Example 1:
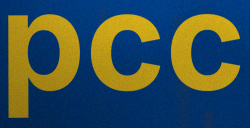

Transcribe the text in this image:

pcc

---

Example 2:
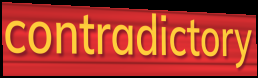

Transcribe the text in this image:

contradictory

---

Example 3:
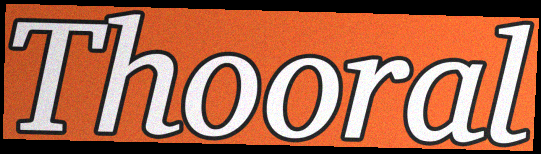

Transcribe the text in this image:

Thooral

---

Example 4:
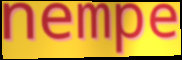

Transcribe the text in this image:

nempe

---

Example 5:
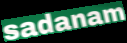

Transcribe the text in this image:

sadanam